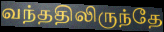
வந்ததிலிருந்தே